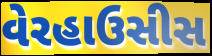
વેરહાઉસીસ